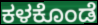
ಕಳಕೊಂಡೆ